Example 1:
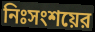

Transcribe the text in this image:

নিঃসংশয়ের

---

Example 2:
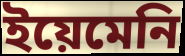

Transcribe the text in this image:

ইয়েমেনি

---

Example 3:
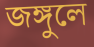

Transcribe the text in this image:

জঙ্গুলে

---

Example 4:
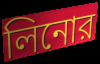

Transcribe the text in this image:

লিনোর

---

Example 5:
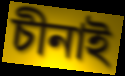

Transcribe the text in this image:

চীনাই